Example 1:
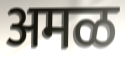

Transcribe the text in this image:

अमळ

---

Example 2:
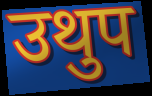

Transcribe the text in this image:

उथुप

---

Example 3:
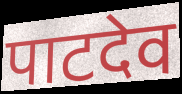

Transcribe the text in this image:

पाटदेव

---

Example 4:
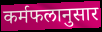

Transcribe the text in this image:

कर्मफलानुसार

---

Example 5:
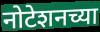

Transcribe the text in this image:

नोटेशनच्या